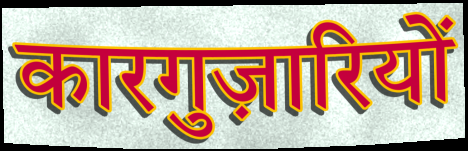
कारगुज़ारियों